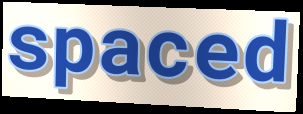
spaced